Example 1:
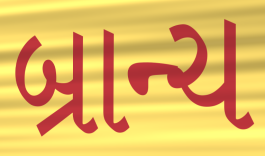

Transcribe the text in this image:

બ્રાન્ચ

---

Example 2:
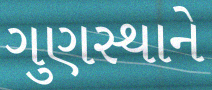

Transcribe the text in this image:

ગુણસ્થાને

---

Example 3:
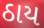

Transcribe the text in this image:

ઠાય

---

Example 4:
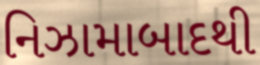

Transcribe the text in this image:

નિઝામાબાદથી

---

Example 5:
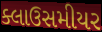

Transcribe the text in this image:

ક્લાઉસમીયર